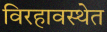
विरहावस्थेत